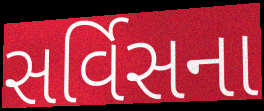
સર્વિસના